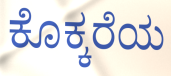
ಕೊಕ್ಕರೆಯ